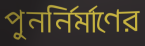
পুনর্নির্মাণের